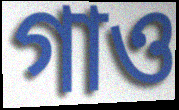
গাও